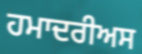
ਹਮਾਦਰੀਅਸ